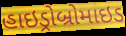
હાઇડ્રોબ્રોમાઇડ